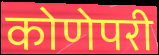
कोणेपरी